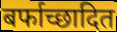
बर्फाच्छादित